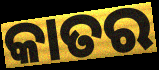
କାତର